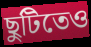
ছুটিতেও